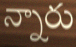
న్నారు